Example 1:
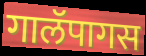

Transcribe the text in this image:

गालॅपागस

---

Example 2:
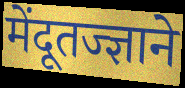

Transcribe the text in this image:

मेंदूतज्ज्ञाने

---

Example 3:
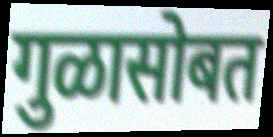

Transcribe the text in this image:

गुळासोबत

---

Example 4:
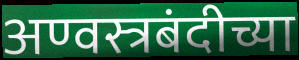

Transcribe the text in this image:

अण्वस्त्रबंदीच्या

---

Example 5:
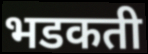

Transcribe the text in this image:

भडकती